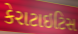
કેરાટાઇટિસ